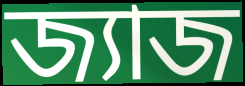
জ্যাজ